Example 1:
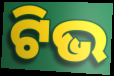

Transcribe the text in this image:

ଟିଭ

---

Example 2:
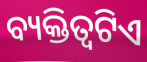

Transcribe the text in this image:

ବ୍ୟକ୍ତିତ୍ବଟିଏ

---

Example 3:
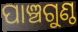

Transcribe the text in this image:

ପାଞ୍ଚଗୁଣ୍ଠ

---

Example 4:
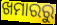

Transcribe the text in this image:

ଖମାରରୁ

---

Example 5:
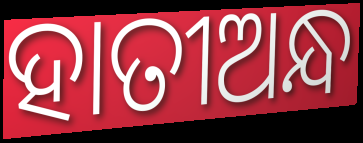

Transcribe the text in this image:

ହାତୀଅନ୍ଧ